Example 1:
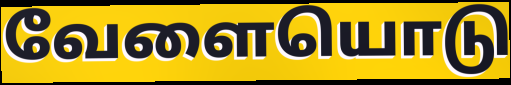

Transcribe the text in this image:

வேளையொடு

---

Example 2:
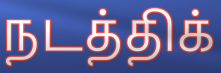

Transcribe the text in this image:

நடத்திக்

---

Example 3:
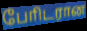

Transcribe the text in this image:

பேரிடரான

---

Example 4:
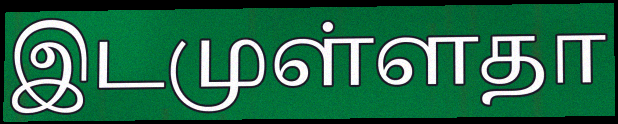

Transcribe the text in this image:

இடமுள்ளதா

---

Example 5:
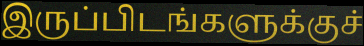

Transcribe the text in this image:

இருப்பிடங்களுக்குச்